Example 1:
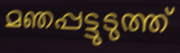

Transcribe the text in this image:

മഞപ്പട്ടുടുത്ത്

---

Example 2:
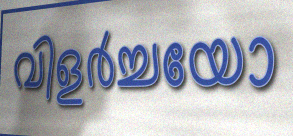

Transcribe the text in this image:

വിളർച്ചയോ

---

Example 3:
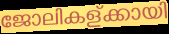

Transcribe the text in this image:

ജോലികള്ക്കായി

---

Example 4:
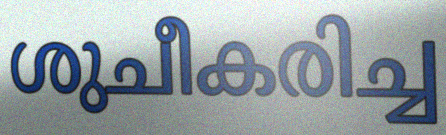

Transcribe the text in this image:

ശുചീകരിച്ച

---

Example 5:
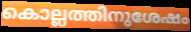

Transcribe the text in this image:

കൊല്ലത്തിനുശേഷം